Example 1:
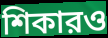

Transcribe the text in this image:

শিকারও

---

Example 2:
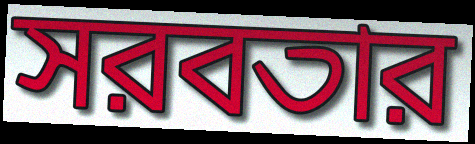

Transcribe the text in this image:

সরবতার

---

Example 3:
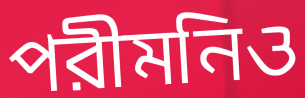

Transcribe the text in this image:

পরীমনিও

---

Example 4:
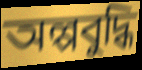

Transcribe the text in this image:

অল্পবুদ্ধি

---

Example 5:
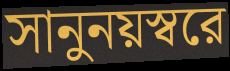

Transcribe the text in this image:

সানুনয়স্বরে